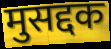
मुसद्दक